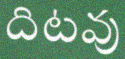
దిటవు